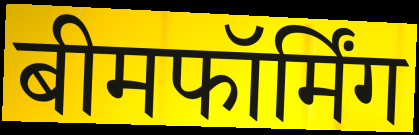
बीमफॉर्मिंग